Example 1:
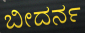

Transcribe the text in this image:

ಬೀದರ್ನ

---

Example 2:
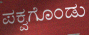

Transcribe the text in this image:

ಪಕ್ವಗೊಂಡು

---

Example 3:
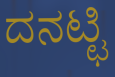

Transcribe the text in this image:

ದನಟ್ಟಿ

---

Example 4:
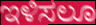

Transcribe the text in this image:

ಇಳಿಸಲೂ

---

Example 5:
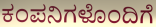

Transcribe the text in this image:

ಕಂಪನಿಗಳೊಂದಿಗೆ